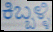
ಕಿಬ್ಬಳ್ಳಿ